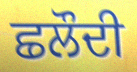
ਛਲੌਦੀ